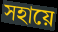
সহায়ে